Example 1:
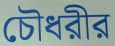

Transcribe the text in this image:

চৌধরীর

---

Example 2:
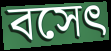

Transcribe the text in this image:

বসেৎ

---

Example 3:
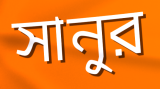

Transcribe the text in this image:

সানুর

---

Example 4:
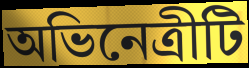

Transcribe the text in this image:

অভিনেত্রীটি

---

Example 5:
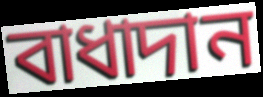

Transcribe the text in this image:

বাধাদান